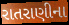
રાતરાણીના